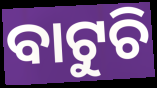
ବାଟୁଚି